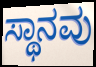
ಸ್ಥಾನವು